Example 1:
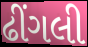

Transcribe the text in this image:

ઢીંગલી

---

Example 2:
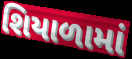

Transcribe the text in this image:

શિયાળામાં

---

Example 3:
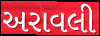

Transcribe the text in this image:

અરાવલી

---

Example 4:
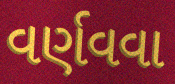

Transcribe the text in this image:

વર્ણવવા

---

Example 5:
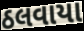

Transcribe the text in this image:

ઠલવાયા